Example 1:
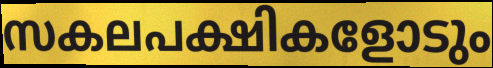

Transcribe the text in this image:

സകലപക്ഷികളോടും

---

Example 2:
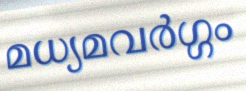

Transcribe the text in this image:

മധ്യമവർഗ്ഗം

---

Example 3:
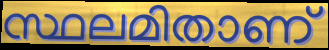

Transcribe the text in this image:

സ്ഥലമിതാണ്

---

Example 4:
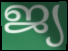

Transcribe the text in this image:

ജ്യ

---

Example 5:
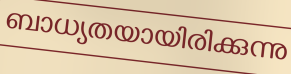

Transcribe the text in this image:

ബാധ്യതയായിരിക്കുന്നു